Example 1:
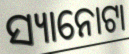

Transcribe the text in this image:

ସ୍ୟାନୋଟା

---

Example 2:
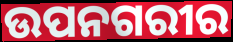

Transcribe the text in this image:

ଉପନଗରୀର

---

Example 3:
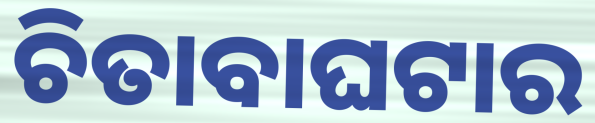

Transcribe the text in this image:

ଚିତାବାଘଟାର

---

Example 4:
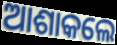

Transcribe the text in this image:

ଆଶାକଲେ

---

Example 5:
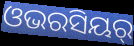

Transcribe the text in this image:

ଓଭରସିୟର୍